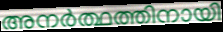
അനർത്ഥത്തിനായി